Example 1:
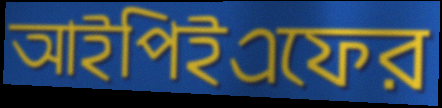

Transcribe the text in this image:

আইপিইএফের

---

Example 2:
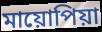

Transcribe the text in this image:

মায়োপিয়া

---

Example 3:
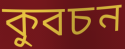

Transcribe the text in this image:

কুবচন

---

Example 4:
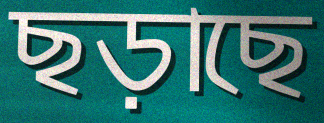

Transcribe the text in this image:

ছড়াছে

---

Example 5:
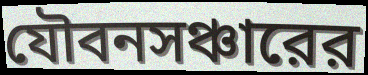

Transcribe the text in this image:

যৌবনসঞ্চারের